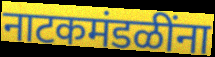
नाटकमंडळींना